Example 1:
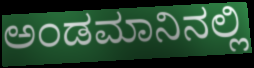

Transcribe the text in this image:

ಅಂಡಮಾನಿನಲ್ಲಿ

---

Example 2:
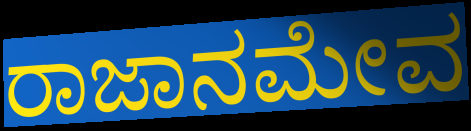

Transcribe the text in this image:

ರಾಜಾನಮೇವ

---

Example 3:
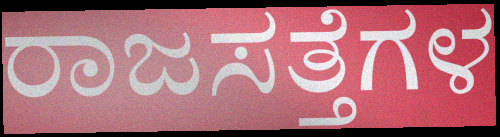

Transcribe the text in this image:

ರಾಜಸತ್ತೆಗಳ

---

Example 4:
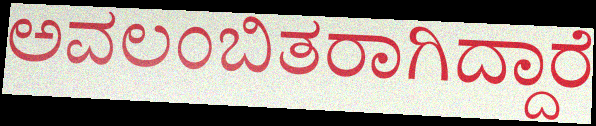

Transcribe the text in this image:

ಅವಲಂಬಿತರಾಗಿದ್ದಾರೆ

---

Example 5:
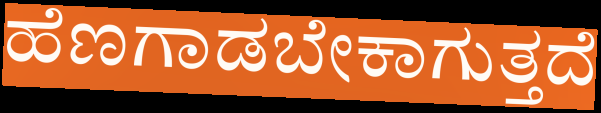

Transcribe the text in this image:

ಹೆಣಗಾಡಬೇಕಾಗುತ್ತದೆ